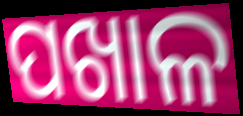
ପଖାଳ